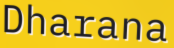
Dharana